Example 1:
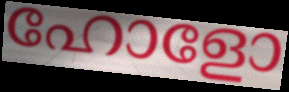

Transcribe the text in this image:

ഹോളോ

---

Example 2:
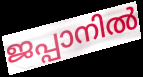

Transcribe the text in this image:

ജപ്പാനിൽ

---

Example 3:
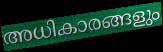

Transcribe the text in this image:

അധികാരങ്ങളും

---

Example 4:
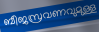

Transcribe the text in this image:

ബീജസ്രവണവുമുള്ള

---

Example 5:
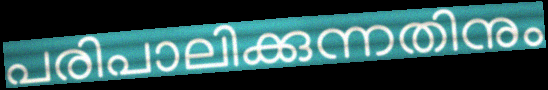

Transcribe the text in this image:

പരിപാലിക്കുന്നതിനും